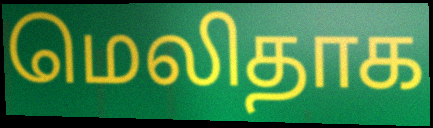
மெலிதாக